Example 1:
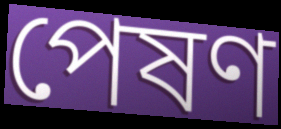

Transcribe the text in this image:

পেষণ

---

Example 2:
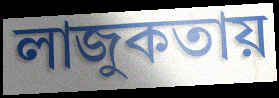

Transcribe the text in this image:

লাজুকতায়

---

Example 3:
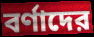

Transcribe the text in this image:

বর্ণাদের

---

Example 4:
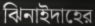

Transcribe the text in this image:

ঝিনাইদাহের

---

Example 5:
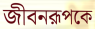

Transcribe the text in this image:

জীবনরূপকে